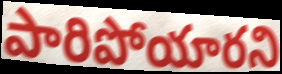
పారిపోయారని